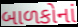
બાળકોનાં